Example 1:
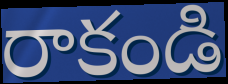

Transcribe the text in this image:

రాకండి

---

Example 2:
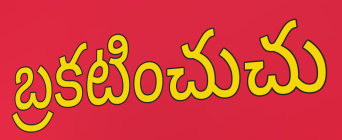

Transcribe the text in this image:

బ్రకటించుచు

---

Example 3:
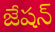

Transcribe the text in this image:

జేషన్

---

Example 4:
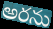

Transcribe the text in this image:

అరను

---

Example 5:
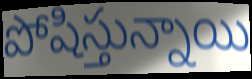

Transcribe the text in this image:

పోషిస్తున్నాయి